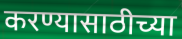
करण्यासाठीच्या